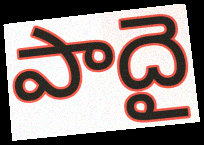
పాదై